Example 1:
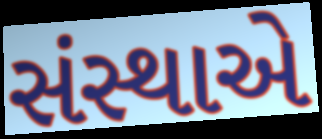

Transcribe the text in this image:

સંસ્થાએ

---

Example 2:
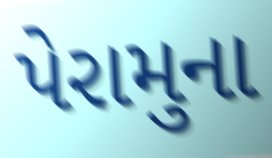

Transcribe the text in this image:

પેરામુના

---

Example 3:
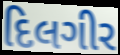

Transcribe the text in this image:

દિલગીર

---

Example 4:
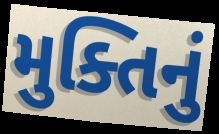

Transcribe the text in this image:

મુક્તિનું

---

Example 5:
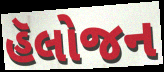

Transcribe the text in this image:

હૅલોજન